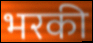
भरकी